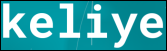
keliye